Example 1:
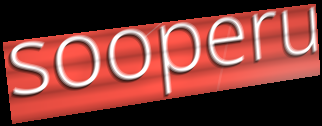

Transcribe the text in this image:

sooperu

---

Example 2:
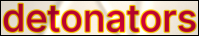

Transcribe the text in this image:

detonators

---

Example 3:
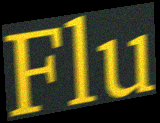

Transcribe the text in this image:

Flu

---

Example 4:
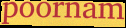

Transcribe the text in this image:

poornam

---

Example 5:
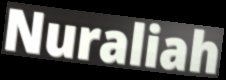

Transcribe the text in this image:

Nuraliah